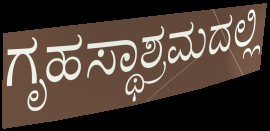
ಗೃಹಸ್ಥಾಶ್ರಮದಲ್ಲಿ